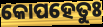
କୋପହେତୁଃ